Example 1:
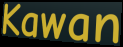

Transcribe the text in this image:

Kawan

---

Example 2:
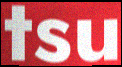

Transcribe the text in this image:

tsu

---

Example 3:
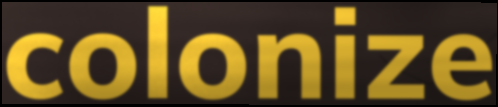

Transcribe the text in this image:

colonize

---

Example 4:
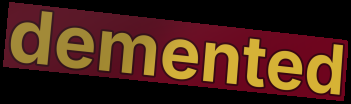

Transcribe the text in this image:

demented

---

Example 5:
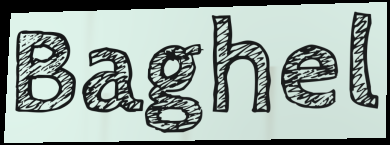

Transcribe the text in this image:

Baghel